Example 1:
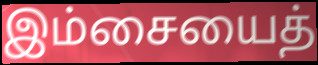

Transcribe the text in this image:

இம்சையைத்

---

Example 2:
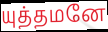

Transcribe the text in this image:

யுத்தமனே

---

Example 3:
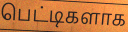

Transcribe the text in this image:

பெட்டிகளாக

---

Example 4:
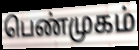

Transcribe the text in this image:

பெண்முகம்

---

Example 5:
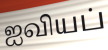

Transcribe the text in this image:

ஐவியப்